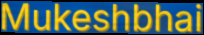
Mukeshbhai